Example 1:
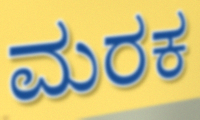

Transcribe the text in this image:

ಮರಕ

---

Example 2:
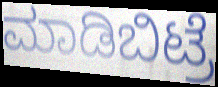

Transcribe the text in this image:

ಮಾಡಿಬಿಟ್ರೆ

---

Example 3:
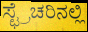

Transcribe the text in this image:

ಸ್ಟ್ರೆಚರಿನಲ್ಲಿ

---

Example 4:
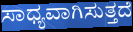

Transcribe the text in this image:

ಸಾಧ್ಯವಾಗಿಸುತ್ತದೆ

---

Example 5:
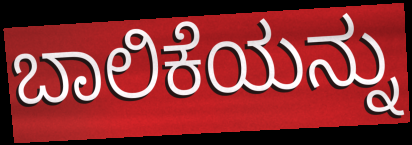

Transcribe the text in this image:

ಬಾಲಿಕೆಯನ್ನು